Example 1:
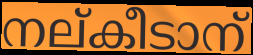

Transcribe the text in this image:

നല്കീടാന്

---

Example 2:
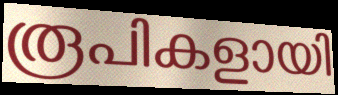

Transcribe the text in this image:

രൂപികളായി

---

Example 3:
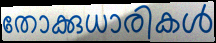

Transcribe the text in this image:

തോക്കുധാരികൾ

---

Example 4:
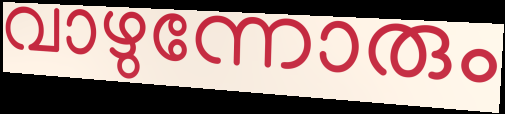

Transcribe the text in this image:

വാഴുന്നോരും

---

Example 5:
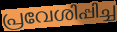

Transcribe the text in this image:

പ്രവേശിപ്പിച്ച